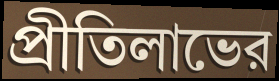
প্রীতিলাভের